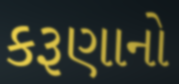
કરૂણાનો